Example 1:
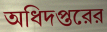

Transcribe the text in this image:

অধিদপ্তরের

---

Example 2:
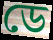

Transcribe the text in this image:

ডে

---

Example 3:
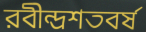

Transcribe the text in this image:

রবীন্দ্রশতবর্ষ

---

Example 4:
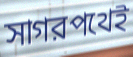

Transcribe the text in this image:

সাগরপথেই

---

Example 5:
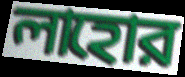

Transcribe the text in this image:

লাহোর